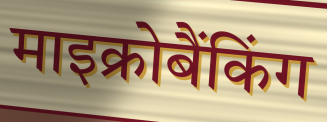
माइक्रोबैंकिंग